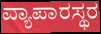
ವ್ಯಾಪಾರಸ್ಥರ